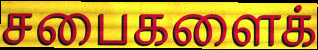
சபைகளைக்